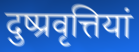
दुष्प्रवृत्तियां